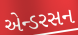
એન્ડરસન